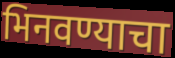
भिनवण्याचा